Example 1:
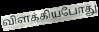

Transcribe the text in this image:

விளக்கியபோது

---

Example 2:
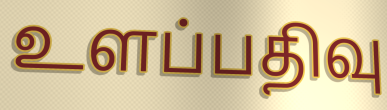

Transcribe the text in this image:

உளப்பதிவு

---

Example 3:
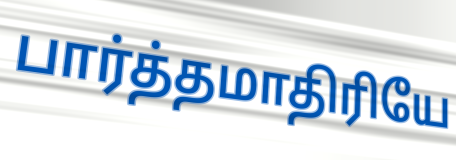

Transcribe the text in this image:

பார்த்தமாதிரியே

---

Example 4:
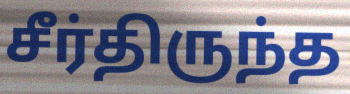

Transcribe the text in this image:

சீர்திருந்த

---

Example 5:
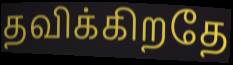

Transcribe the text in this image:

தவிக்கிறதே